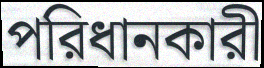
পরিধানকারী